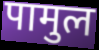
पामुल